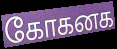
கோகனக